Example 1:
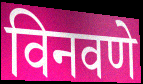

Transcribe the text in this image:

विनवणे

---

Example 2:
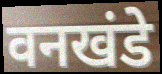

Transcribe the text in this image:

वनखंडे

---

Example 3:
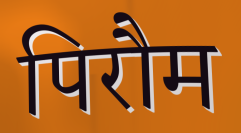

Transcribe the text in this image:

पिरौम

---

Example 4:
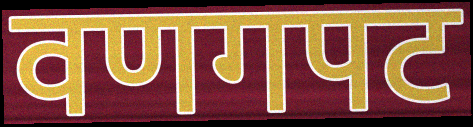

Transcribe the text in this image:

वणगपट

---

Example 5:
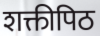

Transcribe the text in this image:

शक्तीपिठ